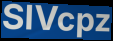
SIVcpz